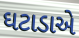
ઘટાડાએ